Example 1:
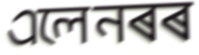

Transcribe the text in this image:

এলেনৰৰ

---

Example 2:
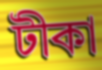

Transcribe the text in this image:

টীকা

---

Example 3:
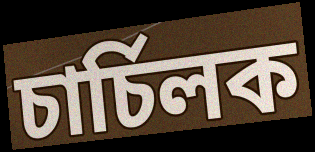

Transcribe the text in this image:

চাৰ্চিলক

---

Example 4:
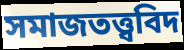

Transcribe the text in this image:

সমাজতত্ত্ববিদ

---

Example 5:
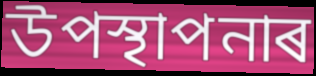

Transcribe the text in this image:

উপস্থাপনাৰ